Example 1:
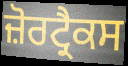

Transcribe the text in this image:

ਜ਼ੋਰਟ੍ਰੈਕਸ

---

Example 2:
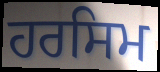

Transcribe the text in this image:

ਹਰਸਿਮ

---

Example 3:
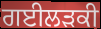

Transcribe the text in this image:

ਗਈਲੜਕੀ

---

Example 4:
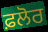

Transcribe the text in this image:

ਫ਼ਲੋਰ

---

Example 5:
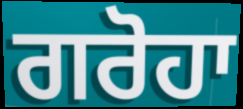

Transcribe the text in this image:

ਗਰੋਹਾ